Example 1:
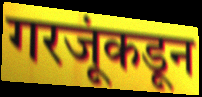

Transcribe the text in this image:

गरजूंकडून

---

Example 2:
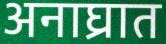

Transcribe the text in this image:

अनाघ्रात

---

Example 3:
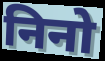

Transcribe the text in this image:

निनो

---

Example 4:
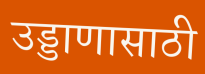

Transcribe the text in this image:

उड्डाणासाठी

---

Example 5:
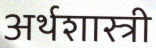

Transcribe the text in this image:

अर्थशास्त्री